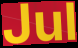
Jul